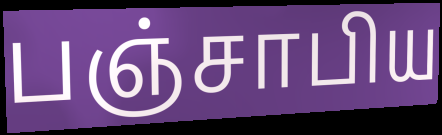
பஞ்சாபிய